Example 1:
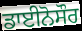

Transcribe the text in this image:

ਡਾਈਨੋਸੌਰ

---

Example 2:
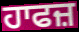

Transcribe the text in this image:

ਹਾਫਜ਼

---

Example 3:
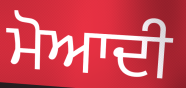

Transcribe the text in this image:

ਮੋਆਦੀ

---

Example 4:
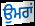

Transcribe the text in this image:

ਉਮਰਾਂ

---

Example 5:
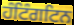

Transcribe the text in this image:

ਹੰਟਿੰਗਟਿਨ